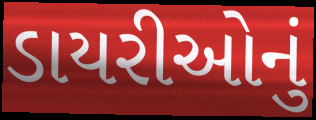
ડાયરીઓનું